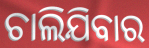
ଚାଲିଯିବାର